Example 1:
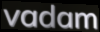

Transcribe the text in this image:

vadam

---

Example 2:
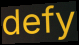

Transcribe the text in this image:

defy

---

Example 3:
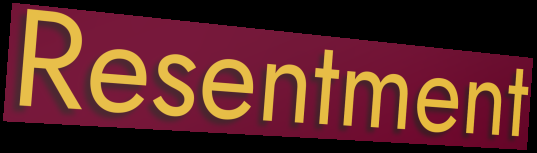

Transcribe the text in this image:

Resentment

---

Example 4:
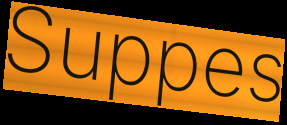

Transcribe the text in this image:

Suppes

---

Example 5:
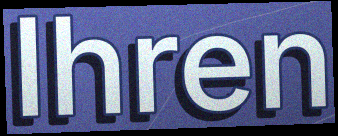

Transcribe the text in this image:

Ihren